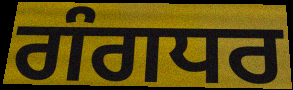
ਗੰਗਧਰ